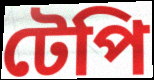
টেপি